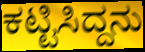
ಕಟ್ಟಿಸಿದ್ದನು